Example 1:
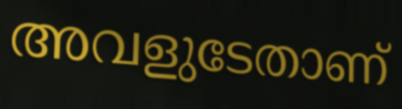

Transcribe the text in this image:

അവളുടേതാണ്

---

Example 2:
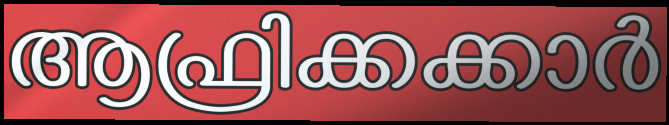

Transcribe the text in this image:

ആഫ്രിക്കക്കാർ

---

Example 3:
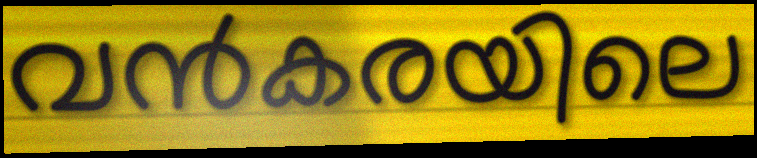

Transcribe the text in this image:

വൻകരയിലെ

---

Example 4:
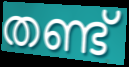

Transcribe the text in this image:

തണ്ട്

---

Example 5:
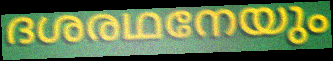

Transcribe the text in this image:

ദശരഥനേയും